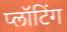
प्लॉटिंग